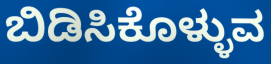
ಬಿಡಿಸಿಕೊಳ್ಳುವ